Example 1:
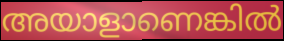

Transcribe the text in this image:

അയാളാണെങ്കിൽ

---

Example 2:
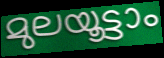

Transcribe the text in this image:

മുലയൂട്ടാം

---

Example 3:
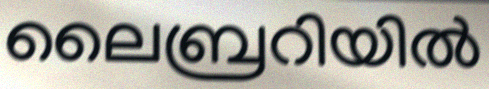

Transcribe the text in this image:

ലൈബ്രറിയിൽ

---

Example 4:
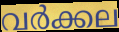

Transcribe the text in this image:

വർക്കല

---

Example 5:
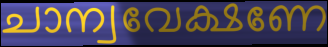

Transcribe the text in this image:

ചാന്വവേക്ഷണേ